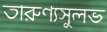
তারুণ্যসুলভ